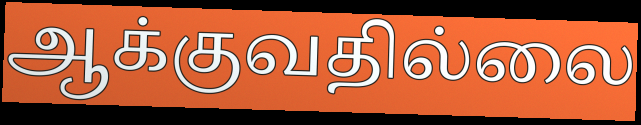
ஆக்குவதில்லை